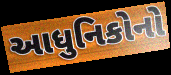
આધુનિકોનો